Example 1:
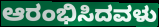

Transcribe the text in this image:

ಆರಂಭಿಸಿದವಳು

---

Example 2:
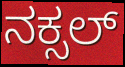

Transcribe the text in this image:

ನಕ್ಸಲ್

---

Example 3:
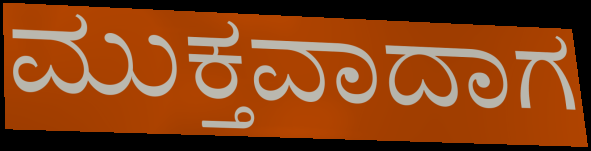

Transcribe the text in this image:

ಮುಕ್ತವಾದಾಗ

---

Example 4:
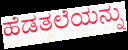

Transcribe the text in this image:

ಹೆಡತಲೆಯನ್ನು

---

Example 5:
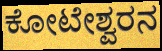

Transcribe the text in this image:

ಕೋಟೇಶ್ವರನ